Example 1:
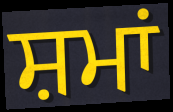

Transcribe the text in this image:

ਸ਼ਮਾਂ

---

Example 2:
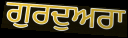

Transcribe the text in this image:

ਗੁਰਦੁਅਰਾ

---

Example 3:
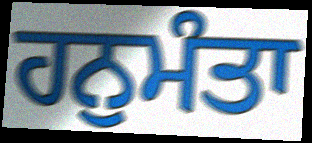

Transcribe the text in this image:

ਹਨੁਮੰਤਾ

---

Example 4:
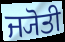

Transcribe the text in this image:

ਜ੍ਯੋਤੀ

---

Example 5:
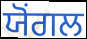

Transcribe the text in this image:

ਯੋਂਗਲ